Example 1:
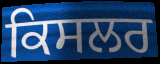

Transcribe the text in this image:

ਕਿਸਲਰ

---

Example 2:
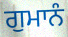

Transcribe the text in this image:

ਗੁਮਾਨੰ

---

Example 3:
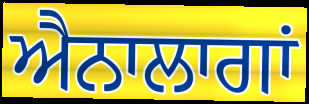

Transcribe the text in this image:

ਐਨਾਲਾਗਾਂ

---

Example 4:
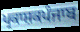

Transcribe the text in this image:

ਪ੍ਰਕਾਸ਼ਕਪੰਜਾਬ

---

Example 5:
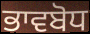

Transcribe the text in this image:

ਭਾਵਬੋਧ